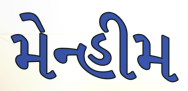
મેન્હીમ